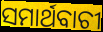
ସମାର୍ଥବାଚୀ